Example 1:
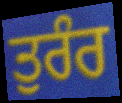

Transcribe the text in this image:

ਤੁਰੰਰ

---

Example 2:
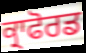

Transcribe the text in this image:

ਕ੍ਰਾਫੋਰਡ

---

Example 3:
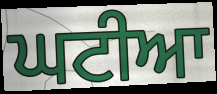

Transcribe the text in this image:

ਘਟੀਆ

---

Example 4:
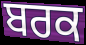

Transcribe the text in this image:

ਬਰਕ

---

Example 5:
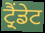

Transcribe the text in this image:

ਟ੍ਰੈਂਡੇਟ